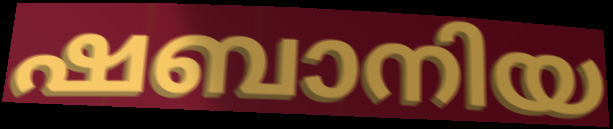
ഷബാനിയ